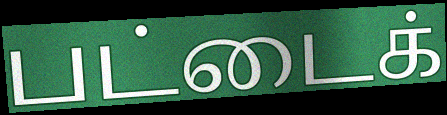
பட்டைக்